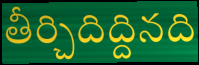
తీర్చిదిద్దినది